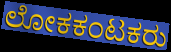
ಲೋಕಕಂಟಕರು